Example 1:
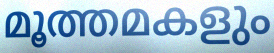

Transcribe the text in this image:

മൂത്തമകളും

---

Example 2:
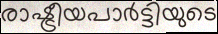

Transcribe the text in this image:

രാഷ്ട്രീയപാർട്ടിയുടെ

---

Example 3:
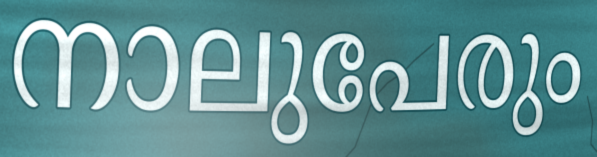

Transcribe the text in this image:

നാലുപേരും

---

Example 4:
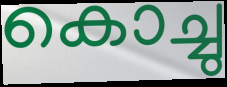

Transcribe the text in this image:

കൊച്ചു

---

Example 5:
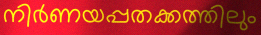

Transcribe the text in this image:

നിർണയപ്പതക്കത്തിലും